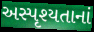
અસ્પૃશ્યતાનાં